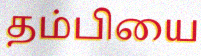
தம்பியை